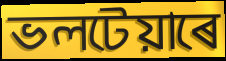
ভলটেয়াৰে